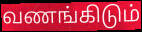
வணங்கிடும்